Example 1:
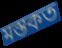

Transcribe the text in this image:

মস্তকত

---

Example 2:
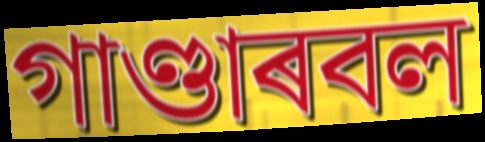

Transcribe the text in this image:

গাণ্ডাৰবল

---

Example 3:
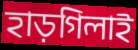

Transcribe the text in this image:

হাড়গিলাই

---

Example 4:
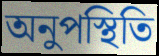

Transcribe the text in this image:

অনুপস্থিতি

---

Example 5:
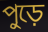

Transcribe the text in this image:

পুড়ে